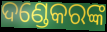
ଦଣ୍ଡେକରଙ୍କ